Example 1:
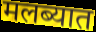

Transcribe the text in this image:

मलब्यात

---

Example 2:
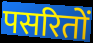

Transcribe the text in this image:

पसरितों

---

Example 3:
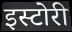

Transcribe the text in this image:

इस्टोरी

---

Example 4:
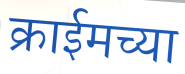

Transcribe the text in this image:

क्राईमच्या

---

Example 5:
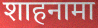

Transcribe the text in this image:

शाहनामा